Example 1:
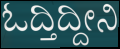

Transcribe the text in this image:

ಓದ್ತಿದ್ದೀನಿ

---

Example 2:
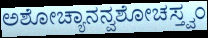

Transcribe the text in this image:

ಅಶೋಚ್ಯಾನನ್ವಶೋಚಸ್ತ್ವಂ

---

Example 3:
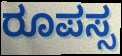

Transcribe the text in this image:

ರೂಪಸ್ಸ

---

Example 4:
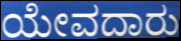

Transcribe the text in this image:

ಯೇವದಾರು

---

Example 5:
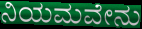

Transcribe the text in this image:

ನಿಯಮವೇನು